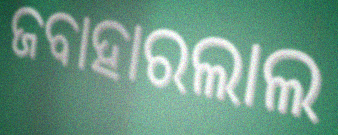
ଜବାହାରଲାଲ